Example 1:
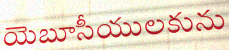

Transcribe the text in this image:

యెబూసీయులకును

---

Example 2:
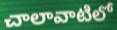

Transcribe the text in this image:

చాలావాటిలో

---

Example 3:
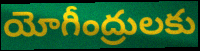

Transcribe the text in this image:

యోగీంద్రులకు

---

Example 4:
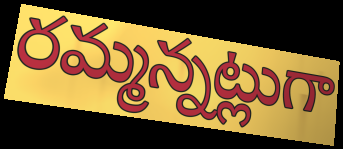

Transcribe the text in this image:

రమ్మన్నట్లుగా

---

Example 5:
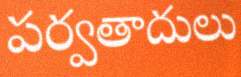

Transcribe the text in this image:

పర్వతాదులు